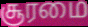
சூரமை